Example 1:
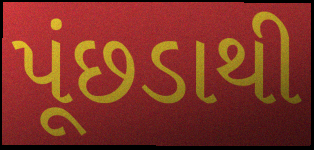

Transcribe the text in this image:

પૂંછડાથી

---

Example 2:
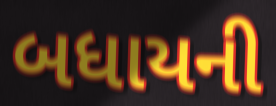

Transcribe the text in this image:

બધાયની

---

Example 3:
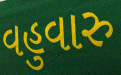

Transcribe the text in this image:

વહુવારુ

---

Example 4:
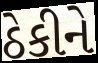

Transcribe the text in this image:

ઠેકીને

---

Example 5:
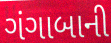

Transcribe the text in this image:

ગંગાબાની